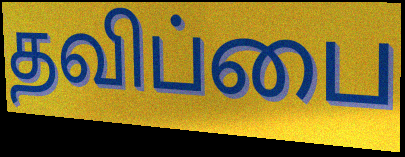
தவிப்பை